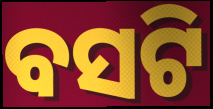
ବସଟି